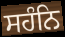
ਸਹੰਨਿ